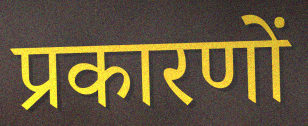
प्रकारणों